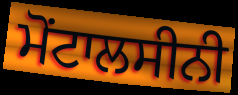
ਮੋਂਟਾਲਸੀਨੀ